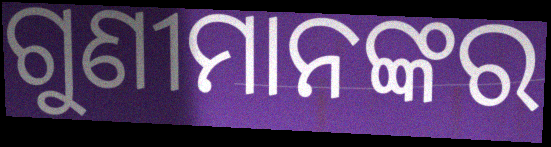
ଗୁଣୀମାନଙ୍କର